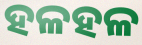
ହଳହଳ